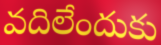
వదిలేందుకు